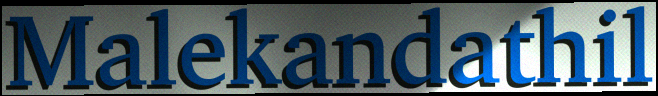
Malekandathil